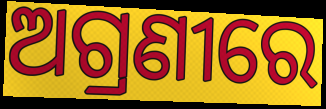
ଅଗ୍ରଣୀରେ